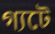
গ্যটে